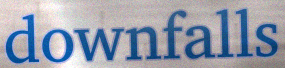
downfalls